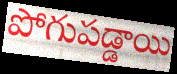
పోగుపడ్డాయి